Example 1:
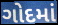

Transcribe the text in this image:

ગોદમાં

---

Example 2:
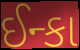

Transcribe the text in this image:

ઈન્કા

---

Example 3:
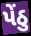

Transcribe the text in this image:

પેંઠુ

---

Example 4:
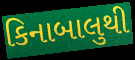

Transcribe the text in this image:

કિનાબાલુથી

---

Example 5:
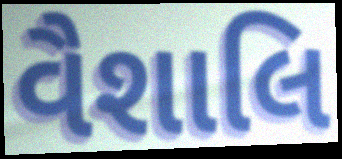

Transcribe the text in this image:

વૈશાલિ